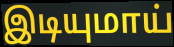
இடியுமாய்